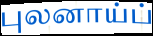
புலனாய்ப்